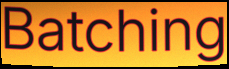
Batching